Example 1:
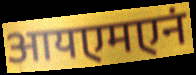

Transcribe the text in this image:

आयएमएनं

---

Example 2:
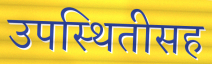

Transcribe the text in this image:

उपस्थितीसह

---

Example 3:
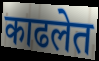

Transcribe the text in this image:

काढलेत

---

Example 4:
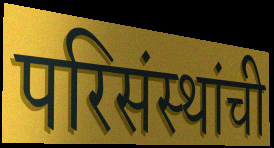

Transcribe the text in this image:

परिसंस्थांची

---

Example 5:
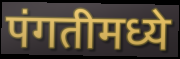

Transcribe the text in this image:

पंगतीमध्ये